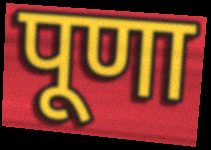
पूणा